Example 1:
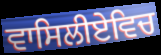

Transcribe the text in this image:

ਵਾਸਿਲੀਏਵਿਚ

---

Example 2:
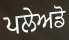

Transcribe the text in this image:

ਪਲੇਅਡੋ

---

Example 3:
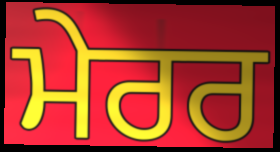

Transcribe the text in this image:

ਮੇਰਰ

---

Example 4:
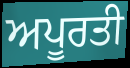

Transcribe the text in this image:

ਅਪੂਰਤੀ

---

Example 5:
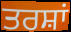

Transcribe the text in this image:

ਤਰਸ਼ਾਂ